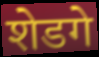
शेडगे